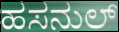
ಹಸನುಲ್